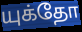
யுக்தோ